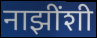
नाझींशी